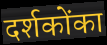
दर्शकोंका